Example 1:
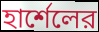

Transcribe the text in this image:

হার্শেলের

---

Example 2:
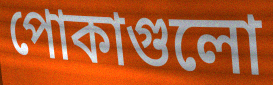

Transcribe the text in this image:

পোকাগুলো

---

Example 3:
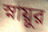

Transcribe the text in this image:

স্নায়ুর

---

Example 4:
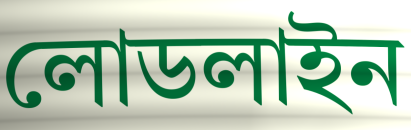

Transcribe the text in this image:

লোডলাইন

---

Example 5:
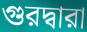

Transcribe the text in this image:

গুরদ্বারা